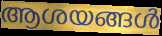
ആശയങ്ങൾ